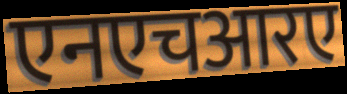
एनएचआरए